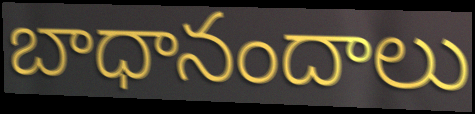
బాధానందాలు